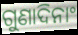
ଗୁଣାଦିନାଂ